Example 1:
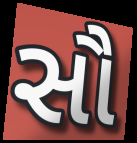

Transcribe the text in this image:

સૌ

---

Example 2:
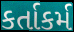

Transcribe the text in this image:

કર્તાકર્મ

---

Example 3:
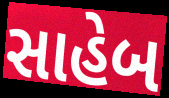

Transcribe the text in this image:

સાહેબ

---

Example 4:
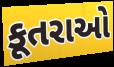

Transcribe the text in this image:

કૂતરાઓ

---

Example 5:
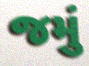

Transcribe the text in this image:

જમું